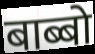
बाब्बो